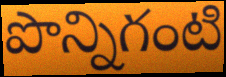
పొన్నిగంటి